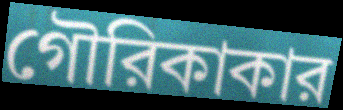
গৌরিকাকার